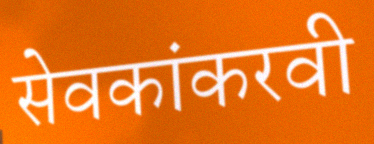
सेवकांकरवी